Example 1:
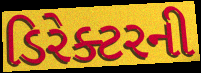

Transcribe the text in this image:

ડિરેક્ટરની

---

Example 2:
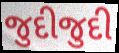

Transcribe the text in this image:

જુદીજુદી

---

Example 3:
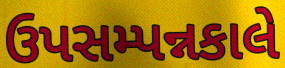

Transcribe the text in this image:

ઉપસમ્પન્નકાલે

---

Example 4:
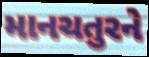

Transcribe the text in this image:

માનચતુરને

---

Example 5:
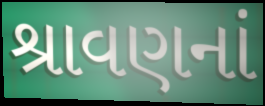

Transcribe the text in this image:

શ્રાવણનાં